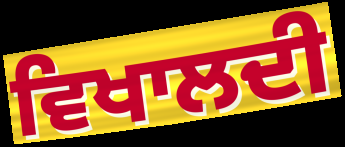
ਵਿਖਾਲਦੀ